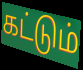
கட்டும்